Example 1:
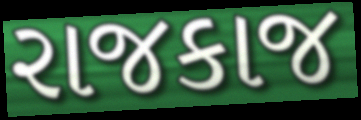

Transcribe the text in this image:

રાજકાજ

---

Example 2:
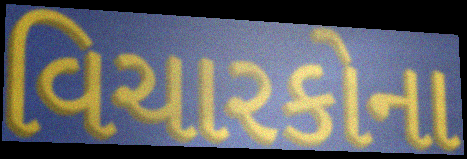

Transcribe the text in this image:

વિચારકોના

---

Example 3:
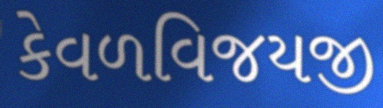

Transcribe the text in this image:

કેવળવિજયજી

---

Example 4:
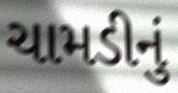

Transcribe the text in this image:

ચામડીનું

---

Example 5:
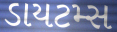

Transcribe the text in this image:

ડાયટમ્સ